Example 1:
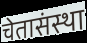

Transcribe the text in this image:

चेतासंस्था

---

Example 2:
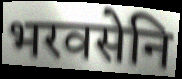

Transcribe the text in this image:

भरवसेनि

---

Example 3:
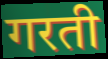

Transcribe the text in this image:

गरती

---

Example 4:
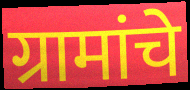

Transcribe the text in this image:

ग्रामांचे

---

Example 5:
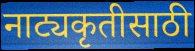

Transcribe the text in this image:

नाट्यकृतीसाठी